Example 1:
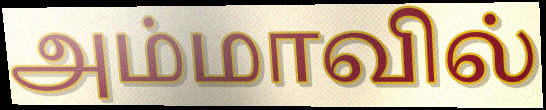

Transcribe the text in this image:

அம்மாவில்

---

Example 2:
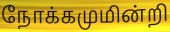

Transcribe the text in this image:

நோக்கமுமின்றி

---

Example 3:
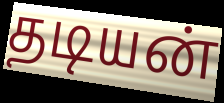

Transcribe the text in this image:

தடியன்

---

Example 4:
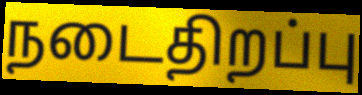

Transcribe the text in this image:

நடைதிறப்பு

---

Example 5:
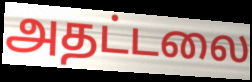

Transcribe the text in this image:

அதட்டலை